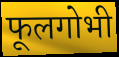
फूलगोभी